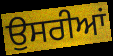
ਉਸਰੀਆਂ